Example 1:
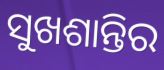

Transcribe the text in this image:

ସୁଖଶାନ୍ତିର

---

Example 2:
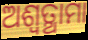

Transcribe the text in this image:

ଅଶ୍ଵତ୍ଥାମା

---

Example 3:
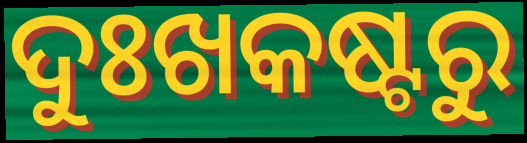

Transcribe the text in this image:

ଦୁଃଖକଷ୍ଟରୁ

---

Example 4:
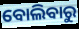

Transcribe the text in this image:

ବୋଲିବାରୁ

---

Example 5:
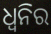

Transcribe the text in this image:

ଧ୍ବନିର